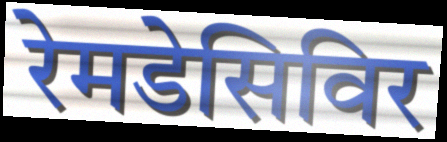
रेमडेसिविर